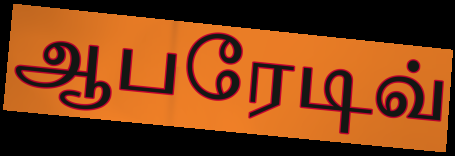
ஆபரேடிவ்